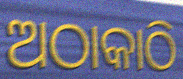
ଅଠାକାଠି